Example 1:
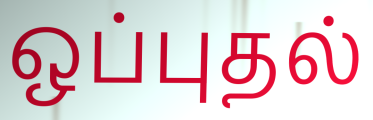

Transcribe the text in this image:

ஒப்புதல்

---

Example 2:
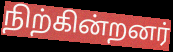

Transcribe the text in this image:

நிற்கின்றனர்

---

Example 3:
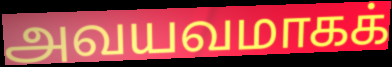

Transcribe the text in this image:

அவயவமாகக்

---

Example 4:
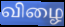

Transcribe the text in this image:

விழை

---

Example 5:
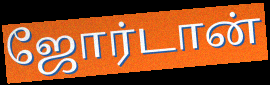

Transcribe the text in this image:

ஜோர்டான்